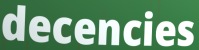
decencies